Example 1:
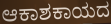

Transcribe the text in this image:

ಆಕಾಶಕಾಯದ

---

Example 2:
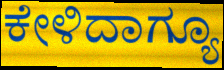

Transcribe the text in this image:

ಕೇಳಿದಾಗ್ಯೂ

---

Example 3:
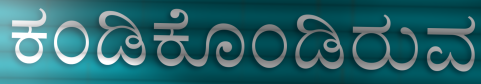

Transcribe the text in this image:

ಕಂಡಿಕೊಂಡಿರುವ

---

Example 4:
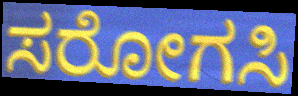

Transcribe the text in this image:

ಸರೋಗಸಿ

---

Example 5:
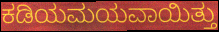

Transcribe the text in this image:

ಕಡಿಯಮಯವಾಯಿತ್ತು